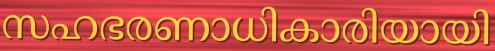
സഹഭരണാധികാരിയായി